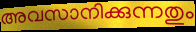
അവസാനിക്കുന്നതും